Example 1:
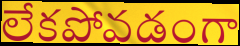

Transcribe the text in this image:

లేకపోవడంగా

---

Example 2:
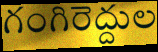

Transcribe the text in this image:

గంగిరెద్దుల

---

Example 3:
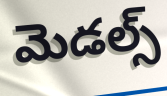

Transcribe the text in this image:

మెడల్స్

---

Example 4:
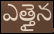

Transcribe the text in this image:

ఎత్తైన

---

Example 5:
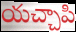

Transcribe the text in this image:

యచ్చాపి